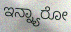
ಇನ್ನ್ಯಾರೋ